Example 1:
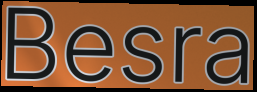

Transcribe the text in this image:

Besra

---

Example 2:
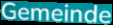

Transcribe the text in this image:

Gemeinde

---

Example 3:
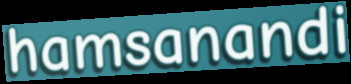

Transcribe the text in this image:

hamsanandi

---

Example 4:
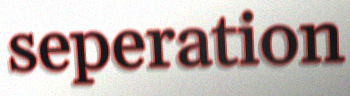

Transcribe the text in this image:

seperation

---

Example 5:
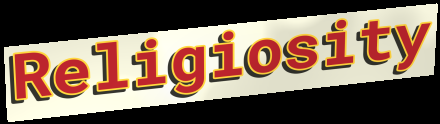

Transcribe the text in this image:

Religiosity